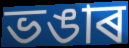
ভঙাৰ